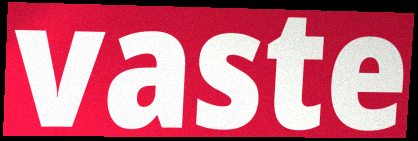
vaste